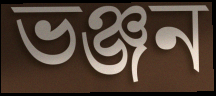
ভঞ্জন